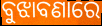
ବୁଝାବଣାରେ